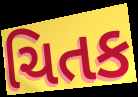
ચિતક